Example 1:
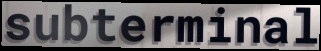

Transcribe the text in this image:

subterminal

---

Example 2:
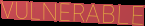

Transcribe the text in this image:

VULNERABLE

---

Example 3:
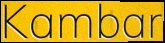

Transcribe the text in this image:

Kambar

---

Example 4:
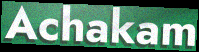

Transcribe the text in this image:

Achakam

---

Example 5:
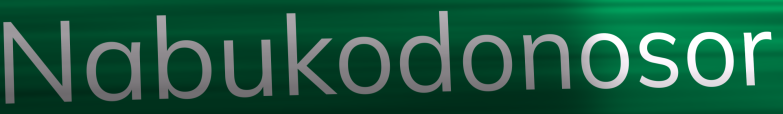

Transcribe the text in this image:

Nabukodonosor